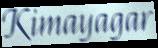
Kimayagar